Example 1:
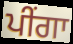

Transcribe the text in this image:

ਪੀਂਗਾ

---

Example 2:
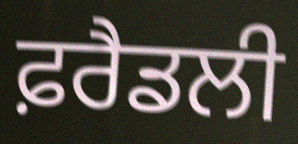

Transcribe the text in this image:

ਫ਼ਰੈਡਲੀ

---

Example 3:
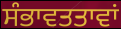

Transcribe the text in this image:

ਸੰਭਾਵਤਤਾਵਾਂ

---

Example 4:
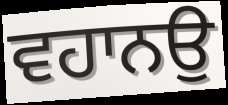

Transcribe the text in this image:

ਵਹਾਨਉ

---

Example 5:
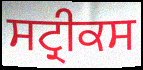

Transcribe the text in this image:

ਸਟ੍ਰੀਕਸ